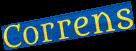
Correns